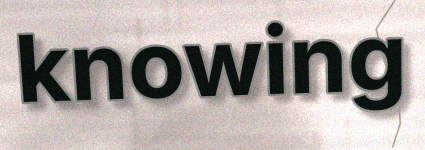
knowing